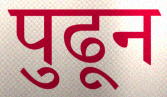
पुढून